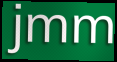
jmm